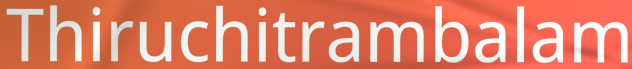
Thiruchitrambalam